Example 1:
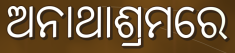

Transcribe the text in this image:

ଅନାଥାଶ୍ରମରେ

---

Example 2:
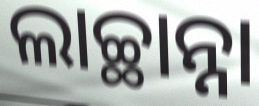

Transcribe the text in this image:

ଲାଚ୍ଛାନ୍ନା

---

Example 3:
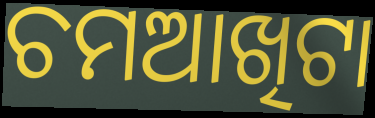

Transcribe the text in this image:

ଚମଆଖିଟା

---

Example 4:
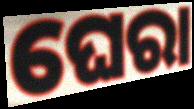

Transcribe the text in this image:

ଘେରା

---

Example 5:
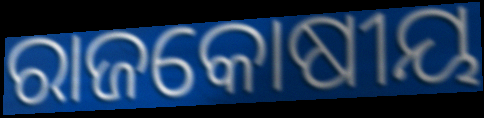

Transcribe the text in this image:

ରାଜକୋଷୀୟ